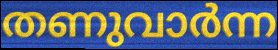
തണുവാർന്ന